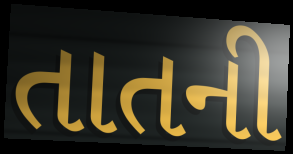
તાતની